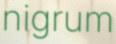
nigrum